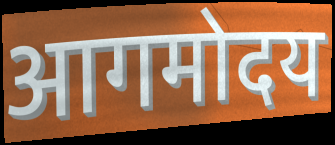
आगमोदय